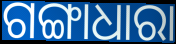
ଗଙ୍ଗାଧାରା